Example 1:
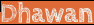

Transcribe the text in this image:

Dhawan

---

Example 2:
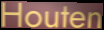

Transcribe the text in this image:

Houten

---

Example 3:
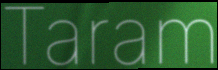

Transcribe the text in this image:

Taram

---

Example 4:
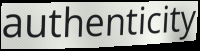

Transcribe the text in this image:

authenticity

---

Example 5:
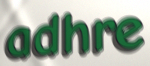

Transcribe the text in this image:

adhre